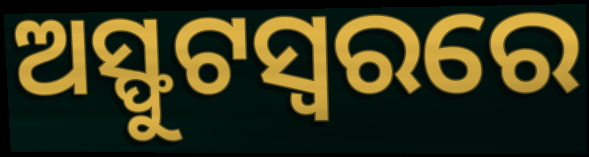
ଅସ୍ଫୁଟସ୍ୱରରେ